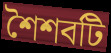
শৈশবটি